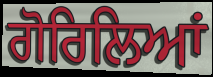
ਗੋਰਿਲਿਆਂ